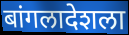
बांगलादेशला